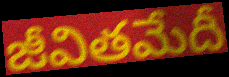
జీవితమేదీ